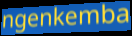
ngenkemba